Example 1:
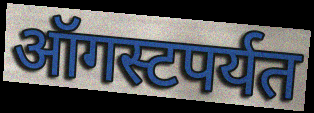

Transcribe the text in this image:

ऑगस्टपर्यत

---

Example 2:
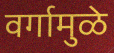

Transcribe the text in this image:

वर्गामुळे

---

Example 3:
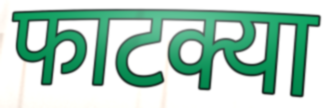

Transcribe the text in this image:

फाटक्या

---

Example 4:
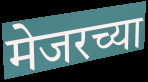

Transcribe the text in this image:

मेजरच्या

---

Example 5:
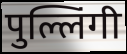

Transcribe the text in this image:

पुल्लिंगी